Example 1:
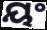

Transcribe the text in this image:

ୟଂ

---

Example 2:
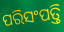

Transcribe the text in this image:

ପରିସଂପତ୍ତି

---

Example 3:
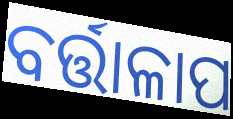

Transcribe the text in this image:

ବର୍ତ୍ତାଳାପ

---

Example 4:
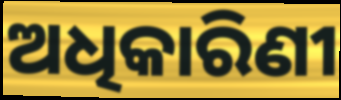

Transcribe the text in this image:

ଅଧିକାରିଣୀ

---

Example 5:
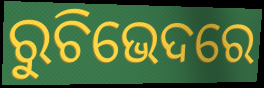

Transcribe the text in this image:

ରୁଚିଭେଦରେ